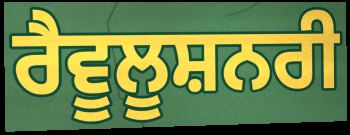
ਰੈਵੂਲੂਸ਼ਨਰੀ